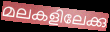
മലകളിലേക്കു